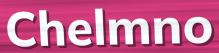
Chelmno